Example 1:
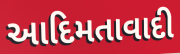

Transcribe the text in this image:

આદિમતાવાદી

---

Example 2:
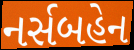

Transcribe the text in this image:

નર્સબહેન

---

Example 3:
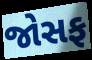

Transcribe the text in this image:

જોસફ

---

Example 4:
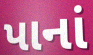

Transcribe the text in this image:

પાનાં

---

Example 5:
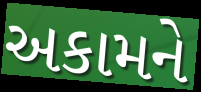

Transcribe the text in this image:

અકામને